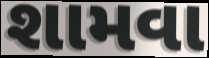
શામવા